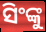
ସିଂଙ୍କୁ